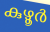
കുഴൂർ